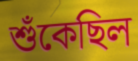
শুঁকেছিল